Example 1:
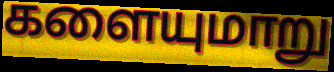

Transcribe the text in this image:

களையுமாறு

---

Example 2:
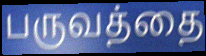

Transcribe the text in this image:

பருவத்தை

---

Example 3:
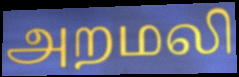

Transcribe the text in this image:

அறமலி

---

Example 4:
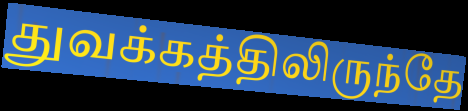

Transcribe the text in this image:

துவக்கத்திலிருந்தே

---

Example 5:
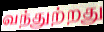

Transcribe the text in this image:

வந்துற்றது